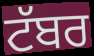
ਟੱਬਰ